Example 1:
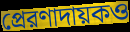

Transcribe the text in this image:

প্রেরণাদায়কও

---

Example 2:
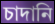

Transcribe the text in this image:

চাদানি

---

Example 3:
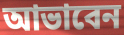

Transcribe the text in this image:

আভাবেন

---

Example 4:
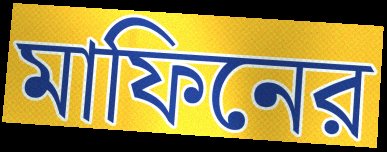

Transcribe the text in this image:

মাফিনের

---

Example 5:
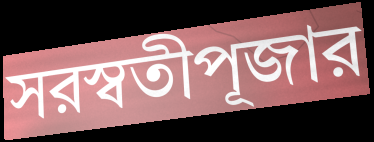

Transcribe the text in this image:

সরস্বতীপূজার